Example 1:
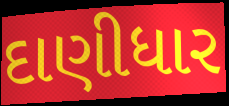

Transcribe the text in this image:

દાણીધાર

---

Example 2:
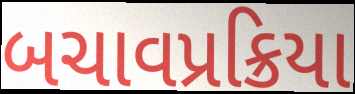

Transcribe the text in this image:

બચાવપ્રક્રિયા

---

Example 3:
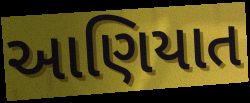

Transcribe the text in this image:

આણિયાત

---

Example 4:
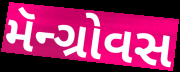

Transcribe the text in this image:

મૅન્ગ્રોવસ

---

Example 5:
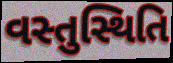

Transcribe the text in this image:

વસ્તુસ્થિતિ